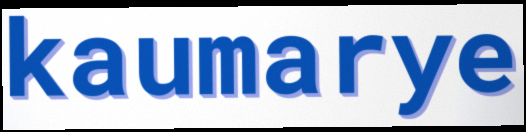
kaumarye